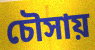
চৌসায়